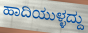
ಹಾದಿಯುಳ್ಳದ್ದು